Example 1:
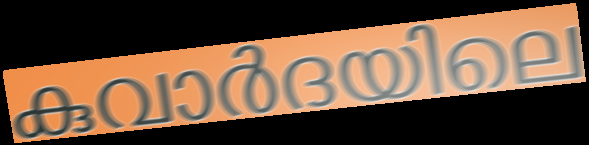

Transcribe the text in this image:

കുവാർദയിലെ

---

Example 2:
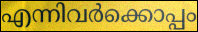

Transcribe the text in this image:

എന്നിവർക്കൊപ്പം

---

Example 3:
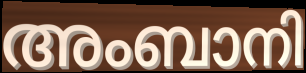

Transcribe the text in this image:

അംബാനി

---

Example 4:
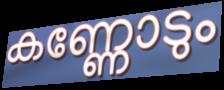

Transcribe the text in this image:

കണ്ണോടും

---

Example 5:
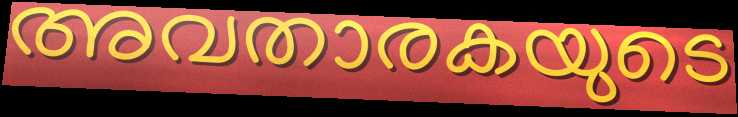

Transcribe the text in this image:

അവതാരകയുടെ